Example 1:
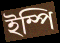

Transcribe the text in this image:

ইম্পি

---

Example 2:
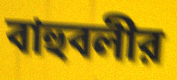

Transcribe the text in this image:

বাহুবলীর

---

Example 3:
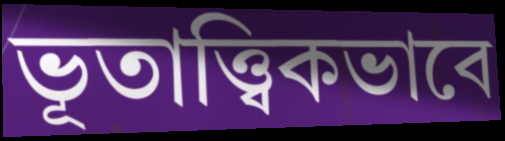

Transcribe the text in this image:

ভূতাত্ত্বিকভাবে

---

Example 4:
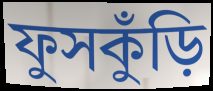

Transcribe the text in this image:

ফুসকুঁড়ি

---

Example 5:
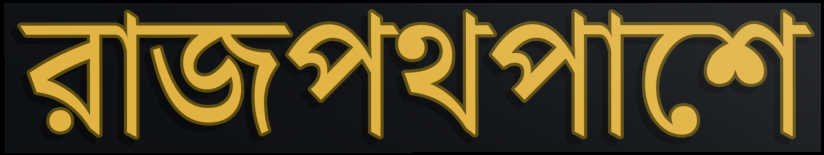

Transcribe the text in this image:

রাজপথপাশে